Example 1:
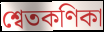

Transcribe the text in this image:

শ্বেতকণিকা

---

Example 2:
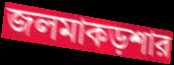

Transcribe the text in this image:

জলমাকড়শার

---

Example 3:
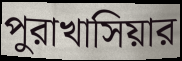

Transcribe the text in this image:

পুরাখাসিয়ার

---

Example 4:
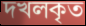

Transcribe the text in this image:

দখলকৃত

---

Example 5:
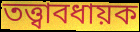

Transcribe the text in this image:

তত্ত্বাবধায়ক